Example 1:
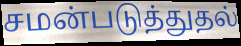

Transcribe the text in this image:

சமன்படுத்துதல்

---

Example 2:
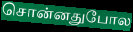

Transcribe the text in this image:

சொன்னதுபோல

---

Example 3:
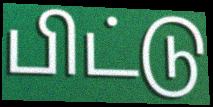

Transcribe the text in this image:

பிட்டு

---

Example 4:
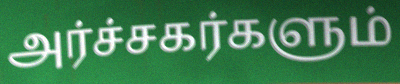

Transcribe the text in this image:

அர்ச்சகர்களும்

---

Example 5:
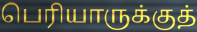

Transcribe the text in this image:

பெரியாருக்குத்